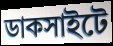
ডাকসাইটে